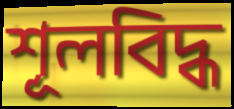
শূলবিদ্ধ